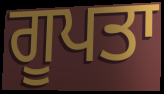
ਗੂਪਤਾ